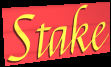
Stake